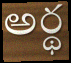
అర్థ